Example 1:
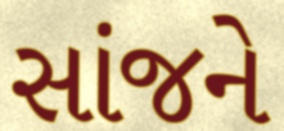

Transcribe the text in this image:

સાંજને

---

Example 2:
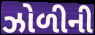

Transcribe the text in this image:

ઝોળીની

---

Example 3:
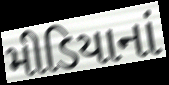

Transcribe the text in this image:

મીડિયાનાં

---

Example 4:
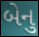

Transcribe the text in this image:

બેનુ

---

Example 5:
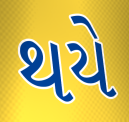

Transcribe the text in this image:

થયે